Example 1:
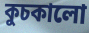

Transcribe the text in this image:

কুচকালো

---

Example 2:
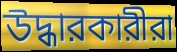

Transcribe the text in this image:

উদ্ধারকারীরা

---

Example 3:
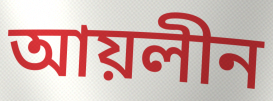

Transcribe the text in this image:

আয়লীন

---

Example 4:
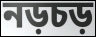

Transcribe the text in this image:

নড়চড়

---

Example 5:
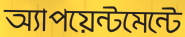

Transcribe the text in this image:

অ্যাপয়েন্টমেন্টে